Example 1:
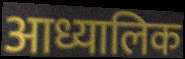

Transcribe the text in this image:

आध्यालिक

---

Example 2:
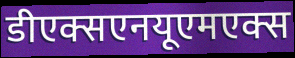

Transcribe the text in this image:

डीएक्सएनयूएमएक्स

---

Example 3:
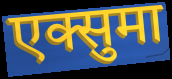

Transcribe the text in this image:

एक्सुमा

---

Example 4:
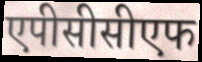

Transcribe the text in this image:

एपीसीसीएफ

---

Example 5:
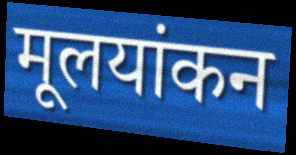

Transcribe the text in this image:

मूलयांकन